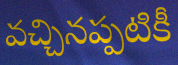
వచ్చినప్పటికీ